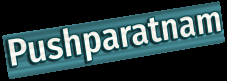
Pushparatnam